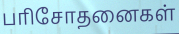
பரிசோதனைகள்